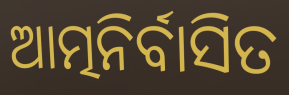
ଆତ୍ମନିର୍ବାସିତ